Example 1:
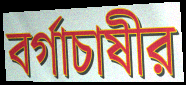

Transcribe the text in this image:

বর্গাচাষীর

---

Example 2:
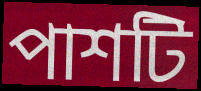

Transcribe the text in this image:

পাশটি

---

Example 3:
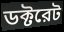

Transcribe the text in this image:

ডক্টরেট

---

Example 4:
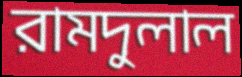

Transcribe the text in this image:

রামদুলাল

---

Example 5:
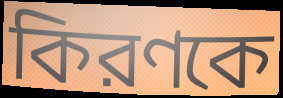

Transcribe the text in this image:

কিরণকে